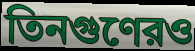
তিনগুণেরও